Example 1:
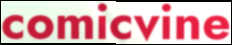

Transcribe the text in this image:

comicvine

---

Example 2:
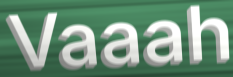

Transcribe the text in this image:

Vaaah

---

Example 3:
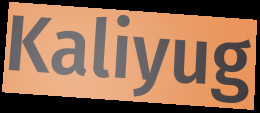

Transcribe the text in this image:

Kaliyug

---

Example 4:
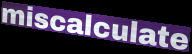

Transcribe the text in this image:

miscalculate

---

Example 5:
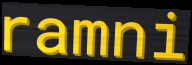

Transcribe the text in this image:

ramni